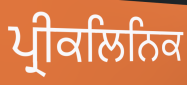
ਪ੍ਰੀਕਲਿਨਿਕ